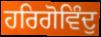
ਹਰਿਗੋਵਿੰਦੁ